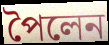
পৈলেন